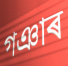
গঞাৰ